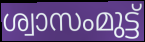
ശ്വാസംമുട്ട്